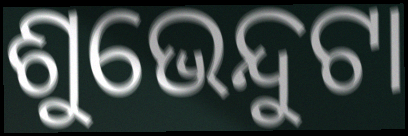
ଶୁଭେନ୍ଦୁଟା